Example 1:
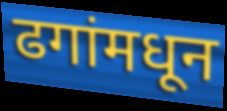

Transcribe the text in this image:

ढगांमधून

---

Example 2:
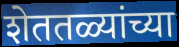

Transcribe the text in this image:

शेततळ्यांच्या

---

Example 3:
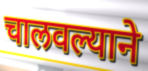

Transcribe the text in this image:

चालवल्याने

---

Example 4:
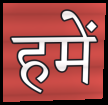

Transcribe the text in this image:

हमें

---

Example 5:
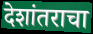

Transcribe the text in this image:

देशांतराचा